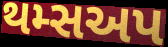
થમ્સઅપ